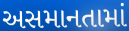
અસમાનતામાં